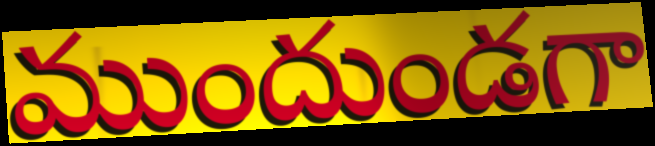
ముందుండగా